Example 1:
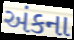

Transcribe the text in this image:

અંકના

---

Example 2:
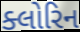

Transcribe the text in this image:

ક્લોરિન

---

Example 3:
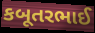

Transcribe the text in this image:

કબૂતરભાઈ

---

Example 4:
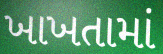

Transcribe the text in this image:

ખાખતામાં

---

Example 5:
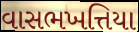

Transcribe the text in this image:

વાસભખત્તિયા